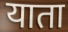
याता